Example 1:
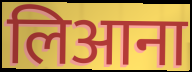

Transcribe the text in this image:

लिआना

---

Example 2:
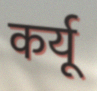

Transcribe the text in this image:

कर्यू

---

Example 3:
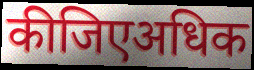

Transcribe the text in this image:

कीजिएअधिक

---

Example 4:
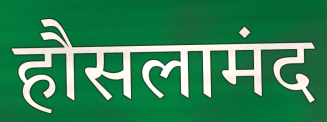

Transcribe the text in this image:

हौसलामंद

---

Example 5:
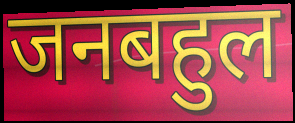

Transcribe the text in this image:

जनबहुल